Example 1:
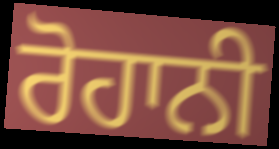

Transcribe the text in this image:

ਰੋਹਾਨੀ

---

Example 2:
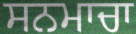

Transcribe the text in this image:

ਸਨਮਾਚਾ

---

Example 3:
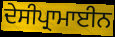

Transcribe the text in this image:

ਦੇਸੀਪ੍ਰਾਮਾਈਨ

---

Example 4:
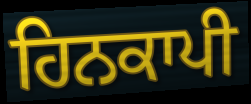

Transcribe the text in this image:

ਹਿਨਕਾਪੀ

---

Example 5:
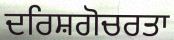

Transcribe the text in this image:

ਦਰਿਸ਼ਗੋਚਰਤਾ